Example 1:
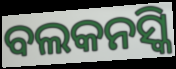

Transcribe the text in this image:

ବଲକନସ୍କି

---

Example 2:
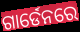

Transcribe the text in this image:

ଗାର୍ଡେନରେ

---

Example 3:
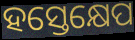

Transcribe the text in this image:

ହସ୍ତେକ୍ଷେପ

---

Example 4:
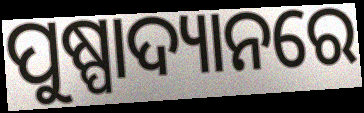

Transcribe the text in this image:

ପୁଷ୍ପାଦ୍ୟାନରେ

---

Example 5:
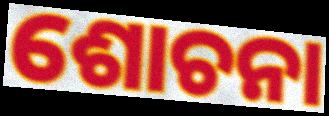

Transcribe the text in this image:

ଶୋଚନା